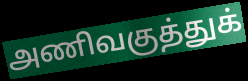
அணிவகுத்துக்